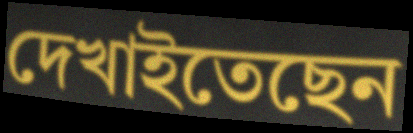
দেখাইতেছেন